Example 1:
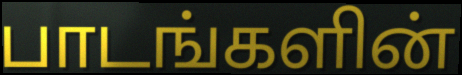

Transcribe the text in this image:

பாடங்களின்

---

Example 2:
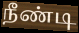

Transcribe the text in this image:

நீண்டி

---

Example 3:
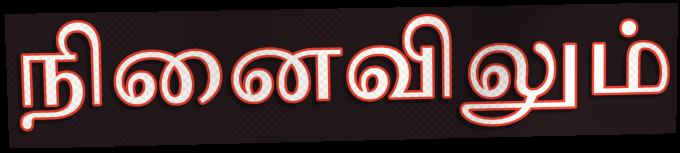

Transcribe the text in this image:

நினைவிலும்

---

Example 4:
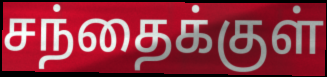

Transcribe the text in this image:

சந்தைக்குள்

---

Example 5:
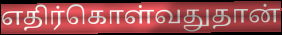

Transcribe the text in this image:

எதிர்கொள்வதுதான்